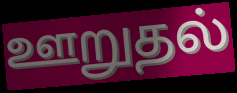
ஊறுதல்